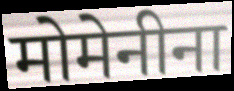
मोमेनीना